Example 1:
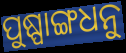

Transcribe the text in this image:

ପୁଷ୍ପାଙ୍ଗଧନୁ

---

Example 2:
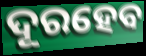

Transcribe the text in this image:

ଦୂରହେବ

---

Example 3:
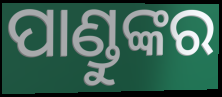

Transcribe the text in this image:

ପାଣ୍ଡୁଙ୍କର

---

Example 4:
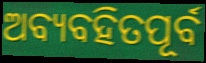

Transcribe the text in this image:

ଅବ୍ୟବହିତପୂର୍ବ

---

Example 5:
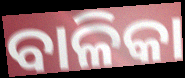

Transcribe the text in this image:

ବାଳିକା